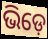
ଭିଡ଼େ